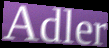
Adler